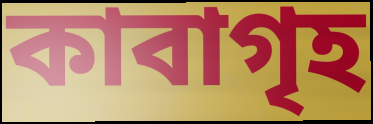
কাবাগৃহ